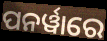
ପନର୍ୱାରେ